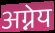
अग्नेय